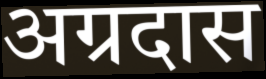
अग्रदास